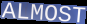
ALMOST